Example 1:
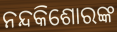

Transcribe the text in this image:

ନନ୍ଦକିଶୋରଙ୍କ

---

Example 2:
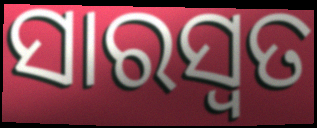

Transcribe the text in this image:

ସାରସ୍ବତ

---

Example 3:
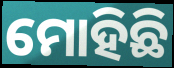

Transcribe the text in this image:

ମୋହିଛି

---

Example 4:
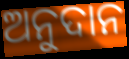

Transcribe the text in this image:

ଅନୁଦାନ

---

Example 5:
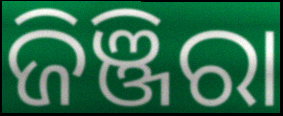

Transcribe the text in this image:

ଜିଞ୍ଜିରା